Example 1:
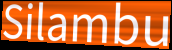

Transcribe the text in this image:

Silambu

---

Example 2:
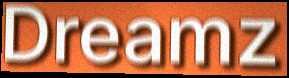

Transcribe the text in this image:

Dreamz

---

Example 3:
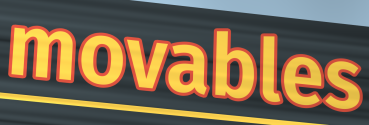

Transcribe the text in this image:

movables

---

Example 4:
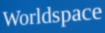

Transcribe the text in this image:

Worldspace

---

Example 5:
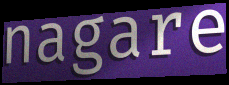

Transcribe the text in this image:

nagare